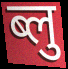
ब्लु